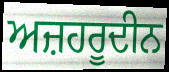
ਅਜ਼ਹਰੂਦੀਨ